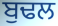
ਬੁਢਲ